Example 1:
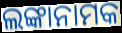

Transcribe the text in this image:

ଲଙ୍କାନାମକ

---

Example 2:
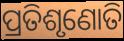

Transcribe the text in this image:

ପ୍ରତିଶୃଣୋତି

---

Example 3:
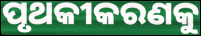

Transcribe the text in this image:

ପୃଥକୀକରଣକୁ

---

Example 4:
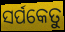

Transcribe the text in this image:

ସର୍ପକେତୁ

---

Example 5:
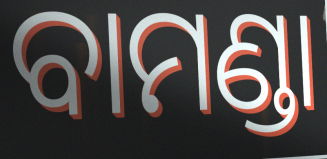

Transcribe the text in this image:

ବାମଣ୍ଡା